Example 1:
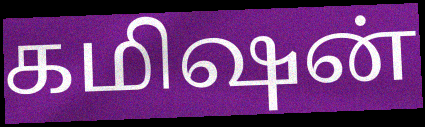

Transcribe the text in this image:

கமிஷன்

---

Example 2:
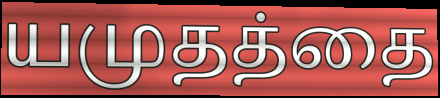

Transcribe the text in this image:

யமுதத்தை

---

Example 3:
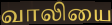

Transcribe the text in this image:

வாலியை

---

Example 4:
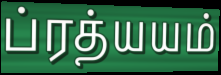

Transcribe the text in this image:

ப்ரத்யயம்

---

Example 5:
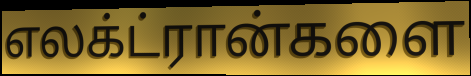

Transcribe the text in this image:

எலக்ட்ரான்களை